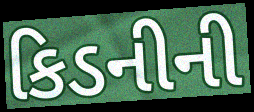
કિડનીની